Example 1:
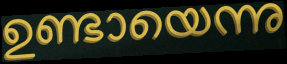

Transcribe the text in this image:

ഉണ്ടായെന്നു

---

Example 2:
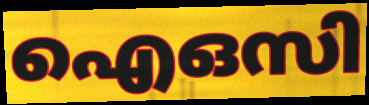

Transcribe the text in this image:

ഐഒസി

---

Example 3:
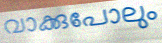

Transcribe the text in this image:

വാക്കുപോലും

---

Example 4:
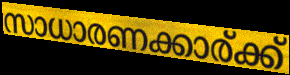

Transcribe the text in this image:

സാധാരണക്കാര്ക്ക്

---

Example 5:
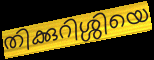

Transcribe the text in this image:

തിക്കുറിശ്ശിയെ